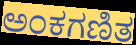
ಅಂಕಗಣಿತ